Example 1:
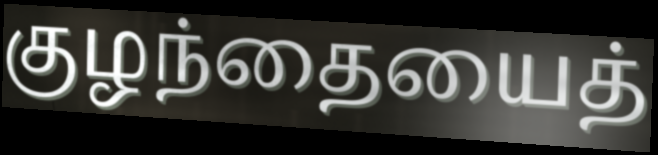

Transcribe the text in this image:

குழந்தையைத்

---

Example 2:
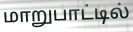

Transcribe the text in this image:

மாறுபாட்டில்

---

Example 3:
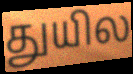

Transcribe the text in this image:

துயில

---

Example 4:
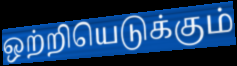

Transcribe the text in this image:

ஒற்றியெடுக்கும்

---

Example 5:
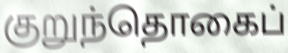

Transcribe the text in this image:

குறுந்தொகைப்